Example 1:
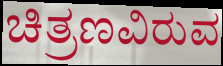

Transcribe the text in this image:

ಚಿತ್ರಣವಿರುವ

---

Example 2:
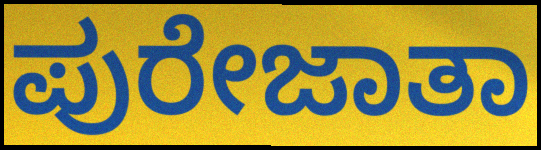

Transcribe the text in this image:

ಪುರೇಜಾತಾ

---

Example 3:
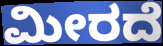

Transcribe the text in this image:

ಮೀರದೆ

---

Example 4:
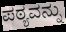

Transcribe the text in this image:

ಪಠ್ಯವನ್ನು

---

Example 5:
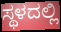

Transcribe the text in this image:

ಸ್ಥಳದಲ್ಲಿ